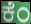
ಕೆಂ